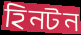
হিনটন